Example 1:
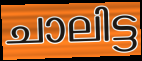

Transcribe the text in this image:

ചാലിട്ട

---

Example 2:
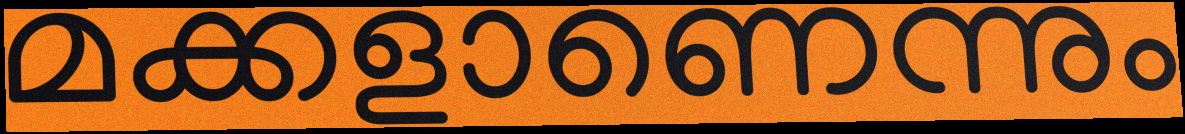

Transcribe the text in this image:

മക്കളാണെന്നും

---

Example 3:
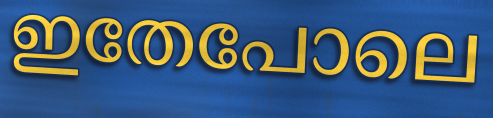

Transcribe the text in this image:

ഇതേപോലെ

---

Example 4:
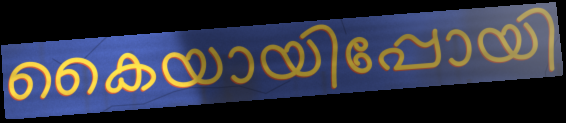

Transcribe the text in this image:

കൈയായിപ്പോയി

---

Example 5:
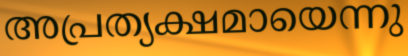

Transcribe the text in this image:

അപ്രത്യക്ഷമായെന്നു